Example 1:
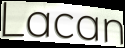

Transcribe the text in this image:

Lacan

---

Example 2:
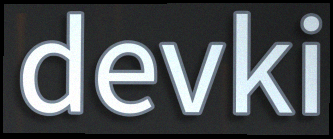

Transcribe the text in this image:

devki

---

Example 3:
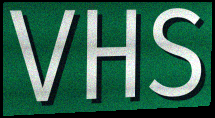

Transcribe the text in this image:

VHS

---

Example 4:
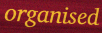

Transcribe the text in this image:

organised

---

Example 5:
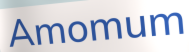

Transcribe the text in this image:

Amomum